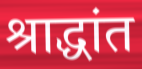
श्राद्धांत